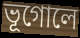
ভূগোলে